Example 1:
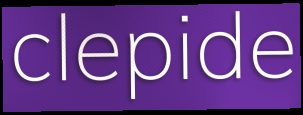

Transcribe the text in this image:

clepide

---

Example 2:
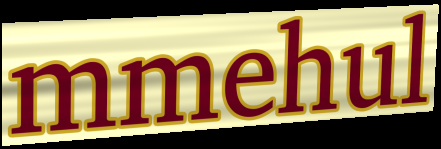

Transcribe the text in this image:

mmehul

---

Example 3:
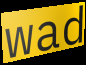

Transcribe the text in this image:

wad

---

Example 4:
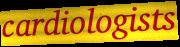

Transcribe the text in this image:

cardiologists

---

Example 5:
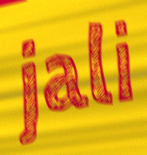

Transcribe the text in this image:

jali